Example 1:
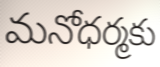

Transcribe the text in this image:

మనోధర్మకు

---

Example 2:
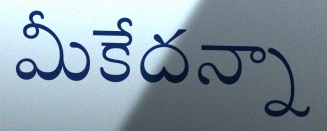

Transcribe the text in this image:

మీకేదన్నా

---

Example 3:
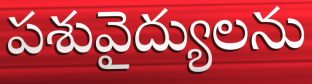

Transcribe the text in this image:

పశువైద్యులను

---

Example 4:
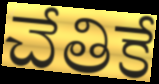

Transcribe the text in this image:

చేతికే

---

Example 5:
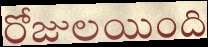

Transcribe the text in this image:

రోజులయింది